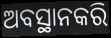
ଅବସ୍ଥାନକରି